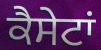
ਕੈਸੇਟਾਂ